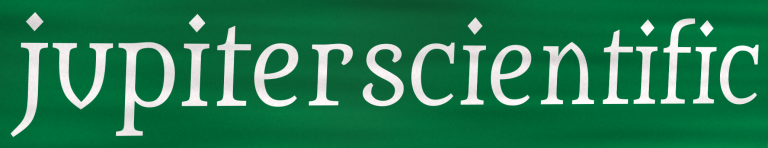
jupiterscientific